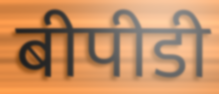
बीपीडी